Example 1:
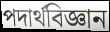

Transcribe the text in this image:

পদার্থবিজ্ঞান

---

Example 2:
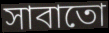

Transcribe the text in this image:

সাবাতো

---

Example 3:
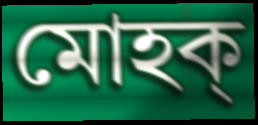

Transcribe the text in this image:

মোহক্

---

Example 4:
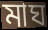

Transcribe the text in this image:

মাঘ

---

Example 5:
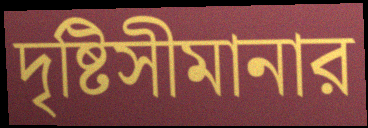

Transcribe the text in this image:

দৃষ্টিসীমানার